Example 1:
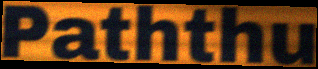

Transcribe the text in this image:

Paththu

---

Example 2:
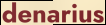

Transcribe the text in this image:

denarius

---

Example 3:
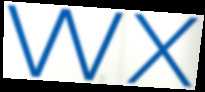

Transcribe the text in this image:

wx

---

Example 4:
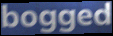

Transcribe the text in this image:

bogged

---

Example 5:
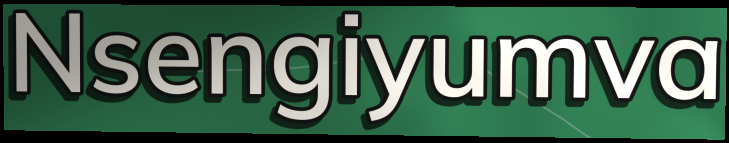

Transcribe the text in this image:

Nsengiyumva